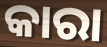
କାରା